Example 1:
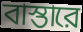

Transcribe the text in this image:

বাস্তারে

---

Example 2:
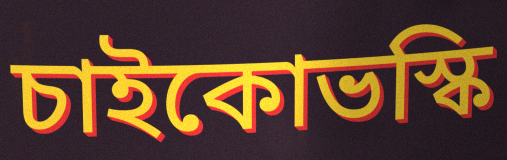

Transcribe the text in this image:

চাইকোভস্কি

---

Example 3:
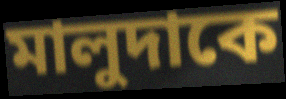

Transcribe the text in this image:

মালুদাকে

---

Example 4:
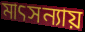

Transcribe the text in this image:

মাৎসন্যায়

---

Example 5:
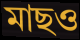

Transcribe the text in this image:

মাছও